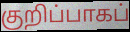
குறிப்பாகப்